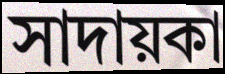
সাদায়কা